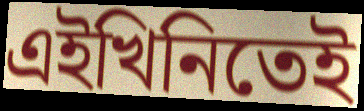
এইখিনিতেই